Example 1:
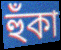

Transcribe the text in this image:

হুঁকা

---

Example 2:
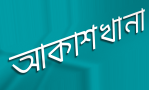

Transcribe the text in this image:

আকাশখানা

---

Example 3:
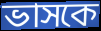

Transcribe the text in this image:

ভাসকে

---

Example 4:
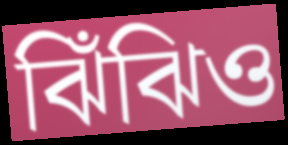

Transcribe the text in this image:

ঝিঁঝিও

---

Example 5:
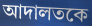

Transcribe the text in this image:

আদালতকে